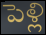
పెళ్లి